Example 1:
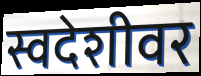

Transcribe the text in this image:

स्वदेशीवर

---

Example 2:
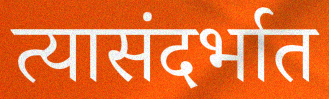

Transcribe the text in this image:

त्यासंदर्भात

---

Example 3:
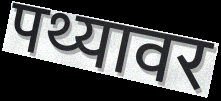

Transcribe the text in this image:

पथ्यावर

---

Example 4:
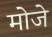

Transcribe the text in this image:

मोजे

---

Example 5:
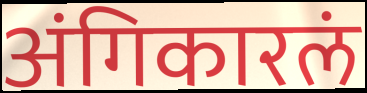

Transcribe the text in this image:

अंगिकारलं